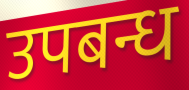
उपबन्ध